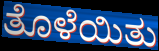
ತೊಳೆಯಿತು